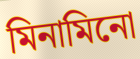
মিনামিনো